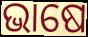
ଭାଷେ